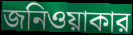
জনিওয়াকার